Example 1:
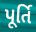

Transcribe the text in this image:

પૂર્તિ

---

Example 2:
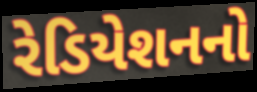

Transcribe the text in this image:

રેડિયેશનનો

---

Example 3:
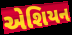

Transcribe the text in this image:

એશિયન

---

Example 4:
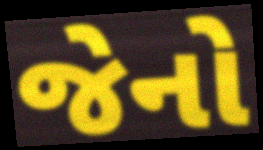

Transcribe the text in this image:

જેનો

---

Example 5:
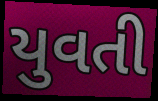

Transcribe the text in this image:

યુવતી